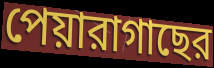
পেয়ারাগাছের